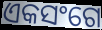
ଏକସଂଗେ